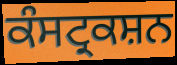
ਕੰਸਟ੍ਰਕਸ਼ਨ